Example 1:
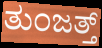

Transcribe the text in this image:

ತುಂಜತ್ತ್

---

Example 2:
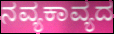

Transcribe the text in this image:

ನವ್ಯಕಾವ್ಯದ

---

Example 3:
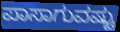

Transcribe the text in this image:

ಪಾಸಾಗುವಷ್ಟು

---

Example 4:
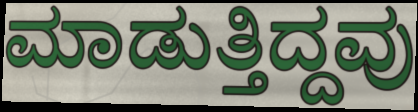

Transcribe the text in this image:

ಮಾಡುತ್ತಿದ್ದವು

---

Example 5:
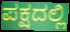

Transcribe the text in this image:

ಪಕ್ಷದಲ್ಲಿ